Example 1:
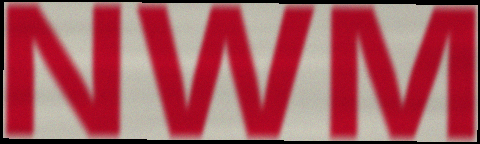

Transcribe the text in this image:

NWM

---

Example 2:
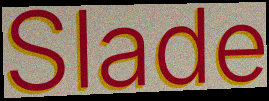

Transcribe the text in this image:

Slade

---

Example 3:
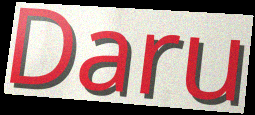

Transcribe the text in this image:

Daru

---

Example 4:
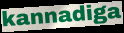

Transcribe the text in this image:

kannadiga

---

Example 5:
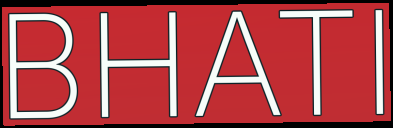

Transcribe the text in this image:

BHATI